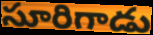
సూరిగాడు